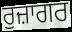
ਰੁਜ਼ਾਗਰ